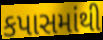
કપાસમાંથી